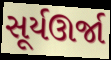
સૂર્યઊર્જા